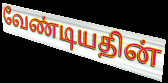
வேண்டியதின்